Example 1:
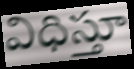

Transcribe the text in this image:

విధిస్తూ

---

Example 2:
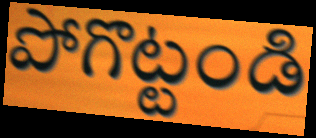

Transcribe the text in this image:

పోగొట్టండి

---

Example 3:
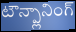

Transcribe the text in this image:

టౌన్ప్లానింగ్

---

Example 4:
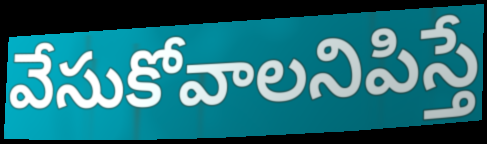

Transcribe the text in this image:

వేసుకోవాలనిపిస్తే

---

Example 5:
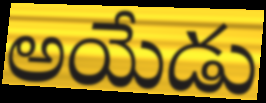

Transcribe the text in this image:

అయేడు